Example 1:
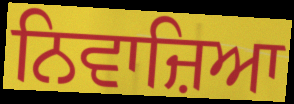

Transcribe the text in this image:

ਨਿਵਾਜ਼ਿਆ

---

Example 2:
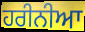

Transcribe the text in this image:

ਹਰੀਨੀਆ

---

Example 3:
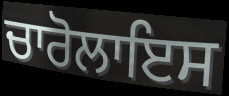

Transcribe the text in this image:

ਚਾਰੋਲਾਇਸ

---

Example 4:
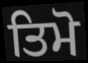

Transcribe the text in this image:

ਤਿਮੋ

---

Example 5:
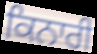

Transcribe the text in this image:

ਕਿਨਾਰੀ